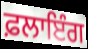
ਫ਼ਲਾਇੰਗ